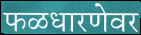
फळधारणेवर